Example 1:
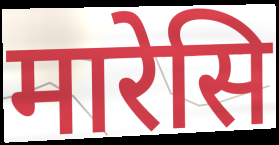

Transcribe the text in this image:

मारेसि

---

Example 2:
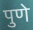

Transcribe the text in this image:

पुणे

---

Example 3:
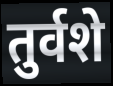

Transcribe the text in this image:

तुर्वशे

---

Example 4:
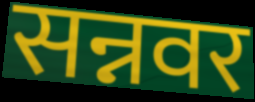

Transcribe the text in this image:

सन्नवर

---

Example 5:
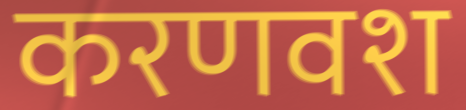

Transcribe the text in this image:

करणवश